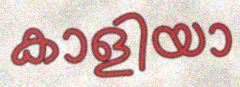
കാളിയാ